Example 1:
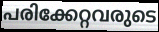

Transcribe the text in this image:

പരിക്കേറ്റവരുടെ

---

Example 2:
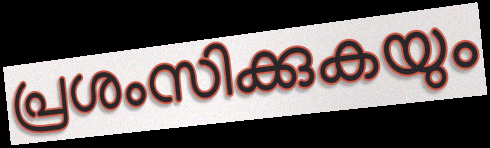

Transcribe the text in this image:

പ്രശംസിക്കുകയും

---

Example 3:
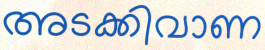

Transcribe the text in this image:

അടക്കിവാണ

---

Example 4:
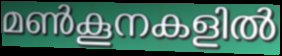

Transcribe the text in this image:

മൺകൂനകളിൽ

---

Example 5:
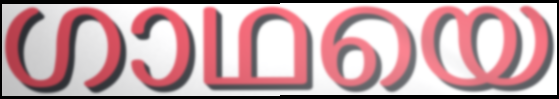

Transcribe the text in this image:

ഗാഥയെ